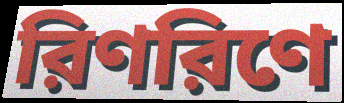
রিণরিণে